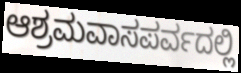
ಆಶ್ರಮವಾಸಪರ್ವದಲ್ಲಿ